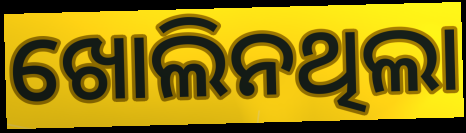
ଖୋଲିନଥିଲା